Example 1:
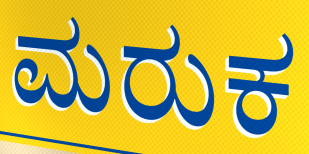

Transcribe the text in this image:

ಮರುಕ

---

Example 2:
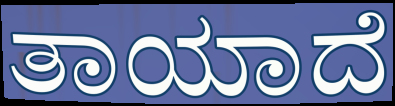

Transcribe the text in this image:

ತಾಯಾದೆ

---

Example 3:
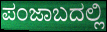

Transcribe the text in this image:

ಪಂಜಾಬದಲ್ಲಿ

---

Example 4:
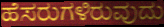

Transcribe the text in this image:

ಹೆಸರುಗಳಿರುವುದು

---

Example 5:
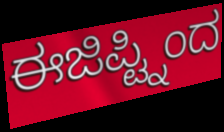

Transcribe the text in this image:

ಈಜಿಪ್ಟ್ನಿಂದ